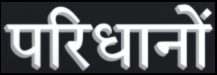
परिधानों